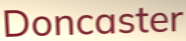
Doncaster